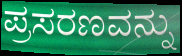
ಪ್ರಸರಣವನ್ನು